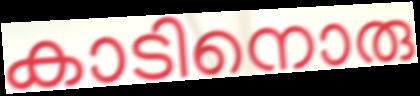
കാടിനൊരു